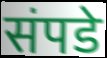
संपडे